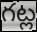
గట్ల